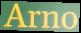
Arno